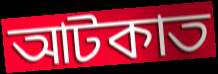
আটকাত